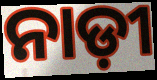
ନାଡ଼ୀ